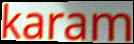
karam